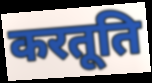
करतूति